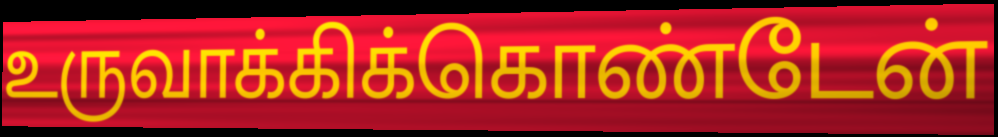
உருவாக்கிக்கொண்டேன்